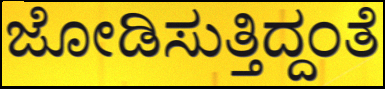
ಜೋಡಿಸುತ್ತಿದ್ದಂತೆ